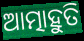
ଆତ୍ମାହୁତି